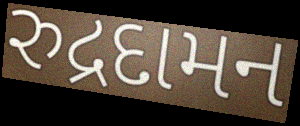
રુદ્રદામન